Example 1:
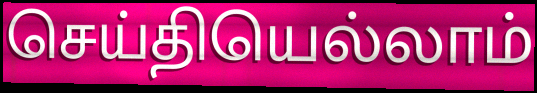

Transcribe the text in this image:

செய்தியெல்லாம்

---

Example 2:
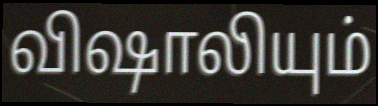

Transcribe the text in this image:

விஷாலியும்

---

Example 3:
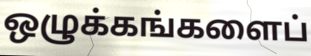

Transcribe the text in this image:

ஒழுக்கங்களைப்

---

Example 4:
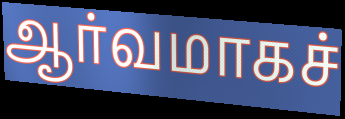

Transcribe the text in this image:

ஆர்வமாகச்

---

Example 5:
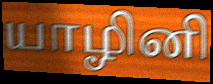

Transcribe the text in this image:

யாழினி